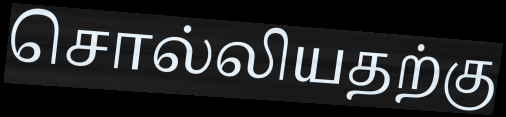
சொல்லியதற்கு